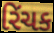
રિંચક